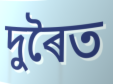
দুৰৈত